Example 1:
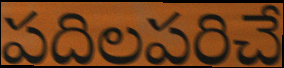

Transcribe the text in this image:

పదిలపరిచే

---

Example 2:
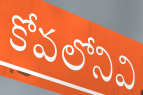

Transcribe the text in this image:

కోవలోనివి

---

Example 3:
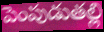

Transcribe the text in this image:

పెంపుడుతల్లి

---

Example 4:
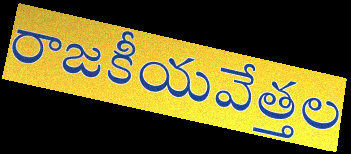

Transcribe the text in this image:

రాజకీయవేత్తల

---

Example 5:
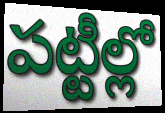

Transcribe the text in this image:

పట్టీల్లో